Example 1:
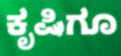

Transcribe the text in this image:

ಕೃಷಿಗೂ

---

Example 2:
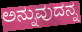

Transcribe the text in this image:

ಅನ್ನುವುದನ್ನ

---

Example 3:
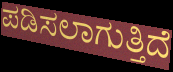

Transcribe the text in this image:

ಪಡಿಸಲಾಗುತ್ತಿದೆ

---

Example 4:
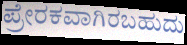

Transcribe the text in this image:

ಪ್ರೇರಕವಾಗಿರಬಹುದು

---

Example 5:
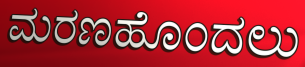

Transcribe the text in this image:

ಮರಣಹೊಂದಲು